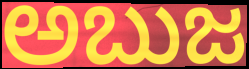
ಅಬುಜ